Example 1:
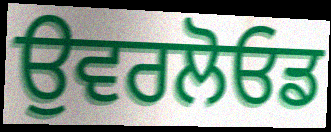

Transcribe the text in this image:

ਉਵਰਲੋਓਡ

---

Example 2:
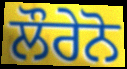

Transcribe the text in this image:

ਲੌਰੇਨੋ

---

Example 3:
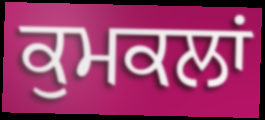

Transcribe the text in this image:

ਕੁਮਕਲਾਂ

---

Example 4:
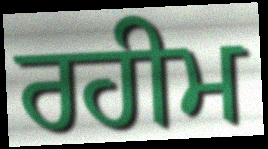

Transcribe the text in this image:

ਰਹੀਮ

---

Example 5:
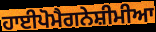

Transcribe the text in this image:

ਹਾਈਪੋਮੈਗਨੇਸ਼ੀਮੀਆ